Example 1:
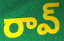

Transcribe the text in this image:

రావ్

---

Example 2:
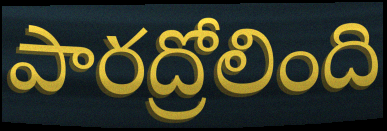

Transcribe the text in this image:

పారద్రోలింది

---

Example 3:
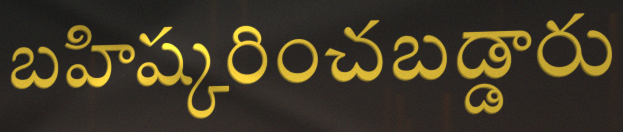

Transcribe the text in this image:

బహిష్కరించబడ్డారు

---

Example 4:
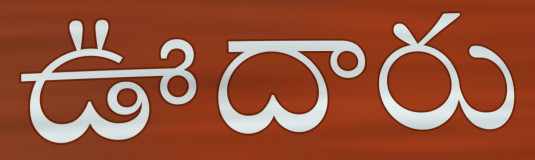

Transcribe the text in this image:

ఊదారు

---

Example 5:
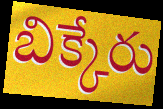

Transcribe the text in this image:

బిక్కేరు